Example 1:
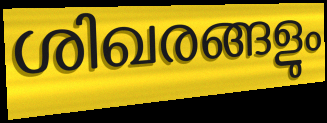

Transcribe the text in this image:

ശിഖരങ്ങളും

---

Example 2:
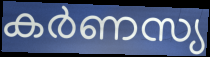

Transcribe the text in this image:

കർണസ്യ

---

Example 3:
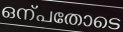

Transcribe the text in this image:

ഒന്പതോടെ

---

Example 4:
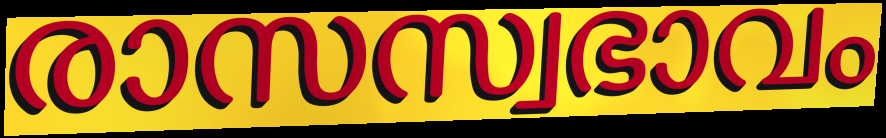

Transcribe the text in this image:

രാസസ്വഭാവം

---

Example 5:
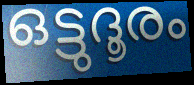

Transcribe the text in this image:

ഒട്ടുദൂരം